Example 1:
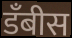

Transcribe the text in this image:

डॅंबीस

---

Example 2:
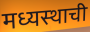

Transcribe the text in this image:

मध्यस्थाची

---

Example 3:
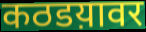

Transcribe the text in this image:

कठडय़ावर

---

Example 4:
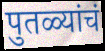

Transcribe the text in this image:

पुतळ्यांचं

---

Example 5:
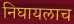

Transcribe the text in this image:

निघायलाच